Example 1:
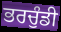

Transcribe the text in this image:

ਭਰਚੁੰਡੀ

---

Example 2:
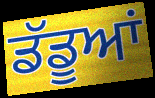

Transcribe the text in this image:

ਡੱਡੂਆਂ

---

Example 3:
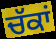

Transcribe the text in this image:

ਚੱਕਾਂ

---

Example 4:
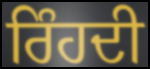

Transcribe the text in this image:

ਰਿੰਹਦੀ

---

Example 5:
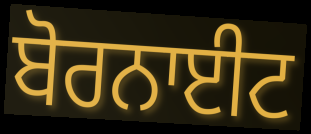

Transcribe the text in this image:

ਬੋਰਨਾਈਟ